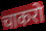
चाकरो